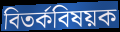
বিতর্কবিষয়ক